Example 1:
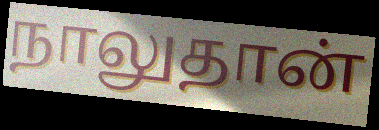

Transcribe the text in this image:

நாலுதான்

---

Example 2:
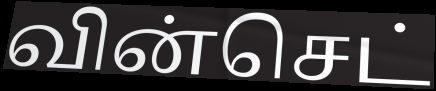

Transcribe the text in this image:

வின்செட்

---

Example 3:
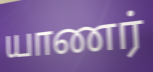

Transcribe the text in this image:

யாணர்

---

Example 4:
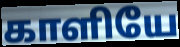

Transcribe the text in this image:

காளியே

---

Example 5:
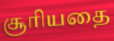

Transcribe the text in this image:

சூரியதை